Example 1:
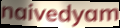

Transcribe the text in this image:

naivedyam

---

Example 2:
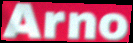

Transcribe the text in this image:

Arno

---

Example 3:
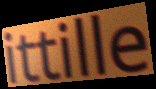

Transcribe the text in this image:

ittille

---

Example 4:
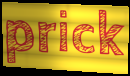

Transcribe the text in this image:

prick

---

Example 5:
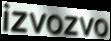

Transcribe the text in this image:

izvozvo